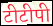
टीटीपी